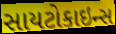
સાયટોકાઇન્સ